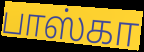
பாஸ்கா